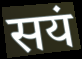
सयं